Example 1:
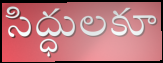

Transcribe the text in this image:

సిద్ధులకూ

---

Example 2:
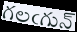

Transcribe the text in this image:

గలఁగున్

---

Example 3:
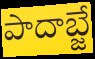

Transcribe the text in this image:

పాదాబ్జే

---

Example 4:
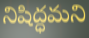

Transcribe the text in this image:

నిషిద్ధమని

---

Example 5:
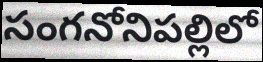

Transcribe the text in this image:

సంగనోనిపల్లిలో